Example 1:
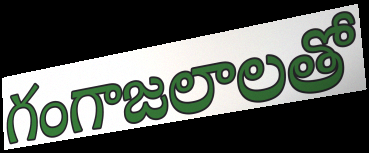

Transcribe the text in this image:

గంగాజలాలతో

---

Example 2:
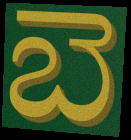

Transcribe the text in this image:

బె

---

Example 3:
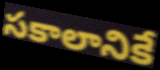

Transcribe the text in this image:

సకాలానికే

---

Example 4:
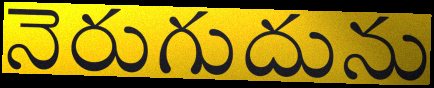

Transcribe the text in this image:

నెరుగుదును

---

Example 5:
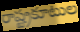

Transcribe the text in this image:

రాష్ట్రకూటుల